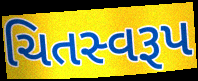
ચિતસ્વરૂપ